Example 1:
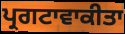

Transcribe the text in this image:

ਪ੍ਰਗਟਾਵਾਕੀਤਾ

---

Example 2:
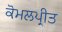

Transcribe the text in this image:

ਕੋਮਲਪ੍ਰੀਤ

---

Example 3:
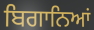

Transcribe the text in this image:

ਬਿਗਾਨਿਆਂ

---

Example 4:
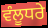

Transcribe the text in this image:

ਵੰਲੂਧਰੇ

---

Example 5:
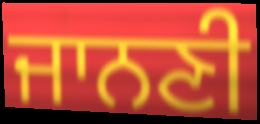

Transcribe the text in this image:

ਜਾਨਣੀ